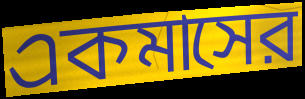
একমাসের